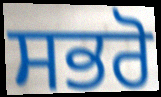
ਸਭਰੋ